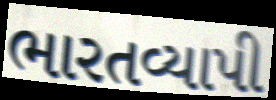
ભારતવ્યાપી